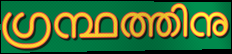
ഗ്രന്ഥത്തിനു